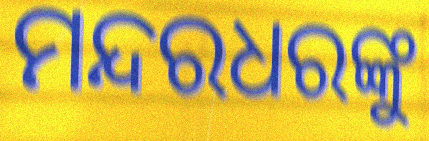
ମନ୍ଦରଧରଙ୍କୁ